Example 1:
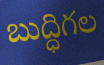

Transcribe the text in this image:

బుద్ధిగల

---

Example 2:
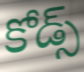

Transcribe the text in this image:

కోడ్స్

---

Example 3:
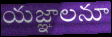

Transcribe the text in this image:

యజ్ఞాలనూ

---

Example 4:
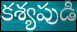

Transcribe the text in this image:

కశ్యపుడి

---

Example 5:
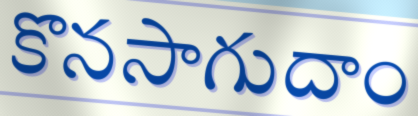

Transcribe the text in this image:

కొనసాగుదాం